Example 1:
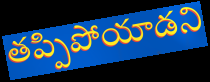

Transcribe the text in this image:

తప్పిపోయాడని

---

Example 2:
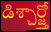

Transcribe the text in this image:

డిశ్చార్జ్తో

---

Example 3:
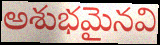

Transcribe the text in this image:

అశుభమైనవి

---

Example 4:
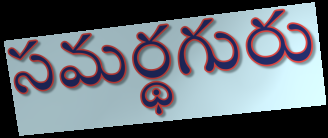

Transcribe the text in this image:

సమర్థగురు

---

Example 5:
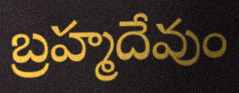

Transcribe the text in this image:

బ్రహ్మదేవుం